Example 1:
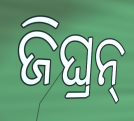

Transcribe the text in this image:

ଜିଘ୍ରନ୍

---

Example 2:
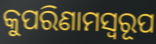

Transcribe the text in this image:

କୁପରିଣାମସ୍ୱରୂପ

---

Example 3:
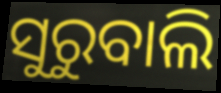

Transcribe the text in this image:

ସୁରୁବାଲି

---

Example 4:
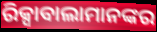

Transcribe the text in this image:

ରିକ୍ସାବାଲାମାନଙ୍କର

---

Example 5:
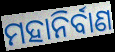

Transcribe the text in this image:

ମହାନିର୍ବାଣ